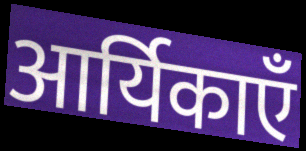
आर्यिकाएँ